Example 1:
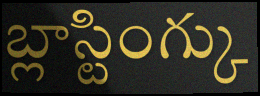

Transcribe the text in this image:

బ్లాస్టింగ్కు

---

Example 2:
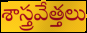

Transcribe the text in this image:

శాస్త్రవేత్తలు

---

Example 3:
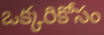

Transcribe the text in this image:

ఒక్కరికోసం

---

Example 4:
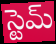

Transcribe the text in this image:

స్టెమ్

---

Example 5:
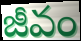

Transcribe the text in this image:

జీవం